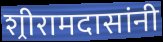
श्रीरामदासांनी